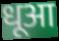
धूआ